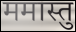
ममास्तु